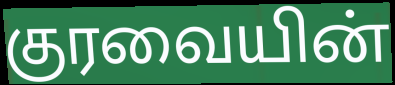
குரவையின்